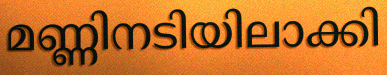
മണ്ണിനടിയിലാക്കി